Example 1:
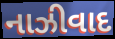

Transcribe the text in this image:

નાઝીવાદ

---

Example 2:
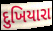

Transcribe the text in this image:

દુખિયારા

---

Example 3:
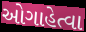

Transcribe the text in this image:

ઓગાહેત્વા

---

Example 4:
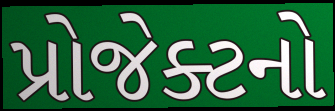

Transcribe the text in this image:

પ્રોજેક્ટનો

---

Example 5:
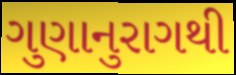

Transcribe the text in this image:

ગુણાનુરાગથી